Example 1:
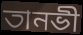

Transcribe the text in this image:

তানভী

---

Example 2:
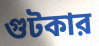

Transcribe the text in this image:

গুটকার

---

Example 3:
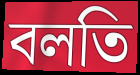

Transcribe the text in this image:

বলতি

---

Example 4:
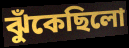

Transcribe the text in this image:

ঝুঁকেছিলো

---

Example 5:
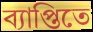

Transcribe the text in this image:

ব্যাপ্তিতে